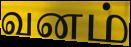
வனம்